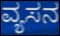
ವ್ಯಸನ